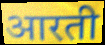
आरती